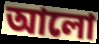
আলো